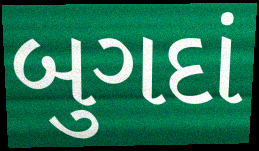
બુગદાં